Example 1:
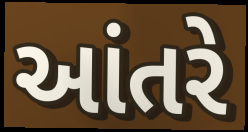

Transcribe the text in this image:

આંતરે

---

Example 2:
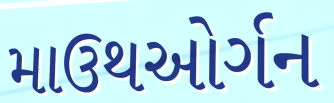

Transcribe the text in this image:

માઉથઓર્ગન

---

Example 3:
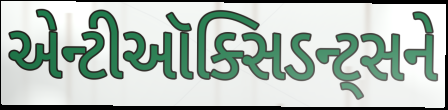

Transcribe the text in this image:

એન્ટીઑક્સિડન્ટ્સને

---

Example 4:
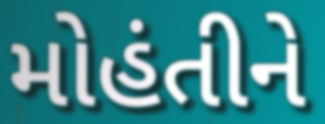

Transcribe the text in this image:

મોહંતીને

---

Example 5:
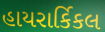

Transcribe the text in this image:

હાયરાર્કિકલ